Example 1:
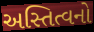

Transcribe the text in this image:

અસ્તિત્વનો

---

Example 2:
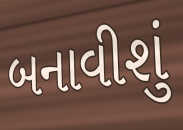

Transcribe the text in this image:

બનાવીશું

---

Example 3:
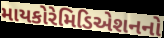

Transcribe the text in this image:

માયકોરેમિડિએશનનો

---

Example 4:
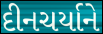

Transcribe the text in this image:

દીનચર્યાને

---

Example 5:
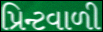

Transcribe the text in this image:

પ્રિન્ટવાળી